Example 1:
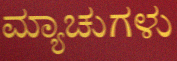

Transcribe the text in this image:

ಮ್ಯಾಚುಗಳು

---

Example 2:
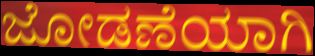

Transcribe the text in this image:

ಜೋಡಣೆಯಾಗಿ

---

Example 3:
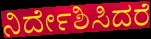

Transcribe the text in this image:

ನಿರ್ದೇಶಿಸಿದರೆ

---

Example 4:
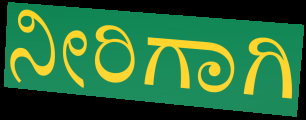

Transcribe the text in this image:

ನೀರಿಗಾಗಿ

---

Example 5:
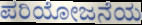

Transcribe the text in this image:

ಪರಿಯೋಜನೆಯ